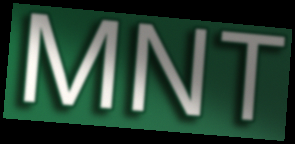
MNT